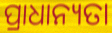
ପ୍ରାଧାନ୍ୟତା